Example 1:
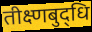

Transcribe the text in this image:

तीक्ष्णबुद्धि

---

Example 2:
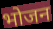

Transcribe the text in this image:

भोजन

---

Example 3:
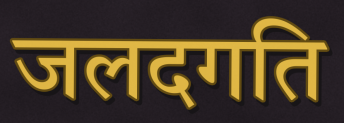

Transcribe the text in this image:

जलदगति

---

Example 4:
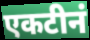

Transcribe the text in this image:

एकटीनं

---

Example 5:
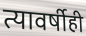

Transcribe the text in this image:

त्यावर्षीही